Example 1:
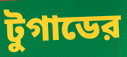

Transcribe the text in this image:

টুগাডের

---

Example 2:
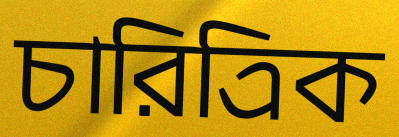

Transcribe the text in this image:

চারিত্রিক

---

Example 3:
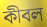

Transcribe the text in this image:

কীবল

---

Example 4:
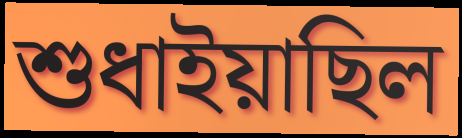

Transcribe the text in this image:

শুধাইয়াছিল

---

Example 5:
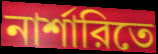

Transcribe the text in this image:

নার্শারিতে